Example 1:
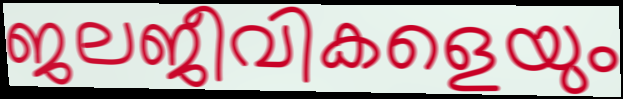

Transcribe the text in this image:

ജലജീവികളെയും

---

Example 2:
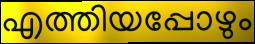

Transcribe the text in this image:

എത്തിയപ്പോഴും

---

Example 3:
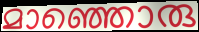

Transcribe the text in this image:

മാഞ്ഞൊരു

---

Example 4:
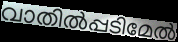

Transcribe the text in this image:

വാതിൽപ്പടിമേൽ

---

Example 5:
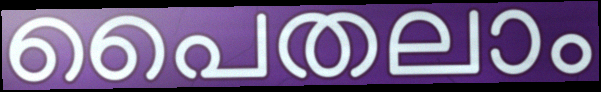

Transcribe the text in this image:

പൈതലാം